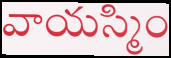
వాయస్మిం